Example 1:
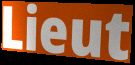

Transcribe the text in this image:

Lieut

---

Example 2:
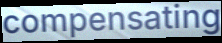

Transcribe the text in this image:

compensating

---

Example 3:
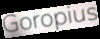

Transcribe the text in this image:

Goropius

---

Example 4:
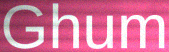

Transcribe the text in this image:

Ghum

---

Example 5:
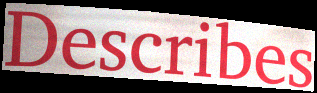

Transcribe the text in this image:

Describes